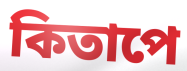
কিতাপে